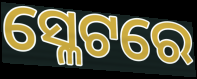
ସ୍ଳେଟରେ